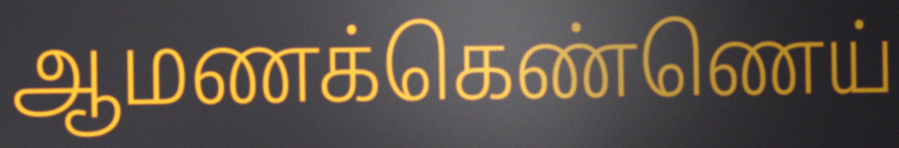
ஆமணக்கெண்ணெய்